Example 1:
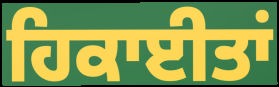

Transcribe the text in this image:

ਹਿਕਾਈਤਾਂ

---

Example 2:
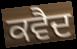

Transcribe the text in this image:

ਕਵੈਦ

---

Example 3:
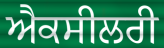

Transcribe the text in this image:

ਐਕਸੀਲਰੀ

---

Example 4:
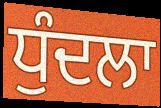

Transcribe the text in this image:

ਧੁੰਦਲਾ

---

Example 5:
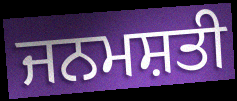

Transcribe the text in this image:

ਜਨਮਸ਼ਤੀ